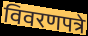
विवरणपत्रे